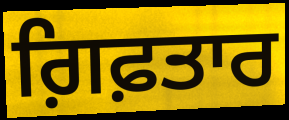
ਗ਼ਿਫ਼ਤਾਰ